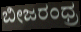
ಬೀಜರಂಧ್ರ